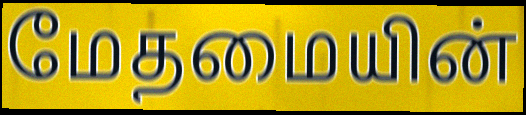
மேதமையின்